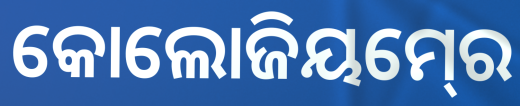
କୋଲୋଜିୟମ୍‍ରେ